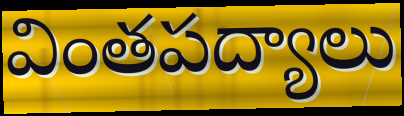
వింతపద్యాలు